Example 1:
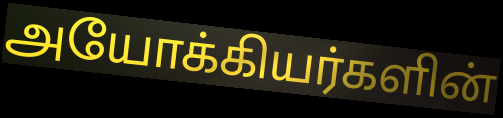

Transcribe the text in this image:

அயோக்கியர்களின்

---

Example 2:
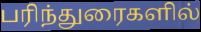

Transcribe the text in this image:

பரிந்துரைகளில்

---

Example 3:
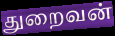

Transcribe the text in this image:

துறைவன்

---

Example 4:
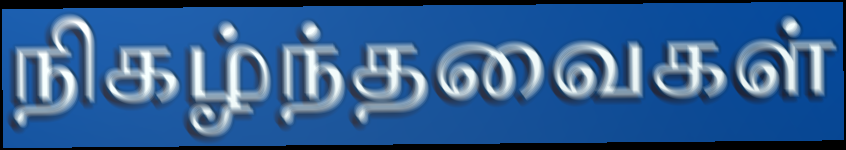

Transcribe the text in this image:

நிகழ்ந்தவைகள்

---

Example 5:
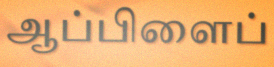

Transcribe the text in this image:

ஆப்பிளைப்